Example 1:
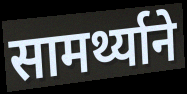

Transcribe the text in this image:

सामर्थ्याने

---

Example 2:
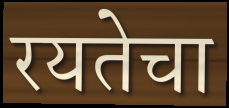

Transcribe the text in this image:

रयतेचा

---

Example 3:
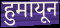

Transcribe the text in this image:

हुमायून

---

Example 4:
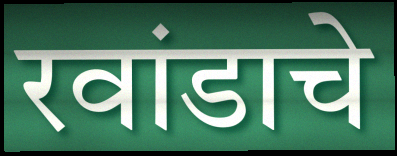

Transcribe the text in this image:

रवांडाचे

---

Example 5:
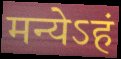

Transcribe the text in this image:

मन्येऽहं